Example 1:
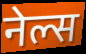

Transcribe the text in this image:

नेल्स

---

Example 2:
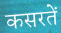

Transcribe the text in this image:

कसरतें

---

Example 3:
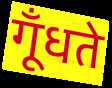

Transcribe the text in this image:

गूँधते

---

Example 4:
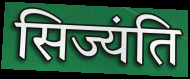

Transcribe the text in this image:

सिज्यंति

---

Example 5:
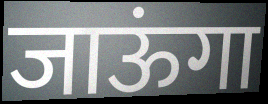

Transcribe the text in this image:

जाऊंगा